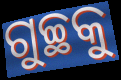
ଗୁଚ୍ଛକୁ